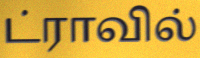
ட்ராவில்